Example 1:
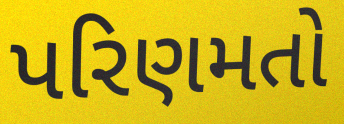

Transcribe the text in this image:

પરિણમતો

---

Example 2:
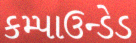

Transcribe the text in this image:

કમ્પાઉન્ડેડ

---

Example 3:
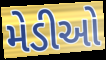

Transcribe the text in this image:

મેડીઓ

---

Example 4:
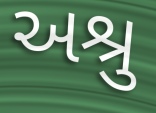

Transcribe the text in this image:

અશ્રુ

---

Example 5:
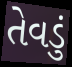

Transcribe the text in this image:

તેવડું